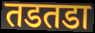
तडतडा